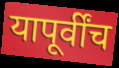
यापूर्वींच